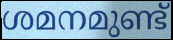
ശമനമുണ്ട്